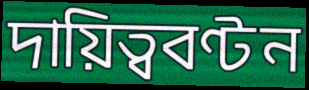
দায়িত্ববণ্টন